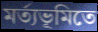
মর্ত্যভূমিতে